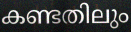
കണ്ടതിലും